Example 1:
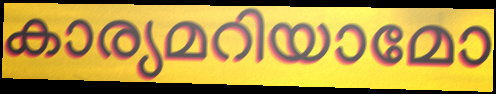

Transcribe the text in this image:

കാര്യമറിയാമോ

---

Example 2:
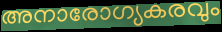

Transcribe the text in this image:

അനാരോഗ്യകരവും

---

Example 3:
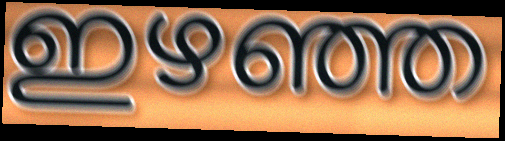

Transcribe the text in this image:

ഇഴഞ്ഞ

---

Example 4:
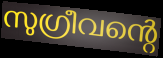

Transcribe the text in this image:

സുഗ്രീവന്റെ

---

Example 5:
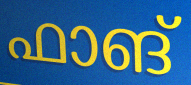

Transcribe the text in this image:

ഫാങ്